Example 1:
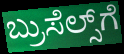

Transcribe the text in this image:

ಬ್ರುಸೆಲ್ಸ್‌ಗೆ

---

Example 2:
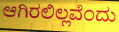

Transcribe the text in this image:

ಆಗಿರಲಿಲ್ಲವೆಂದು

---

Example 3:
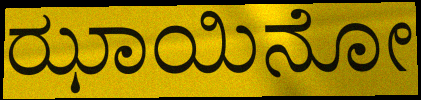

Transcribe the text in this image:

ಝಾಯಿನೋ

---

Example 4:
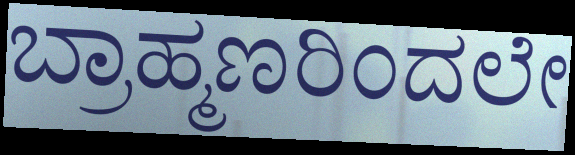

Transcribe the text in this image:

ಬ್ರಾಹ್ಮಣರಿಂದಲೇ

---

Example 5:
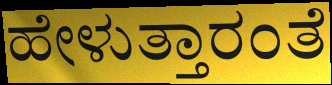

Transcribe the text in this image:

ಹೇಳುತ್ತಾರಂತೆ